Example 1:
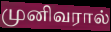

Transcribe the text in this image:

முனிவரால்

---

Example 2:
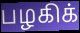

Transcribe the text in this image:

பழகிக்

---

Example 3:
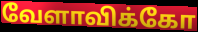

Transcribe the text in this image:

வேளாவிக்கோ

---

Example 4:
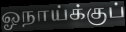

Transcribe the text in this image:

ஓநாய்க்குப்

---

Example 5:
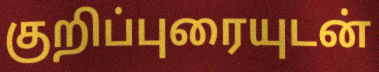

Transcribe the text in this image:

குறிப்புரையுடன்